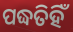
ପଦ୍ଧତିହିଁ